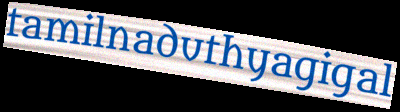
tamilnaduthyagigal